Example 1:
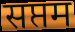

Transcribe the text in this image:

सप्तम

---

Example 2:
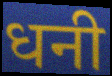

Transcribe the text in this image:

धनी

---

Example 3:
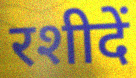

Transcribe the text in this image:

रशीदें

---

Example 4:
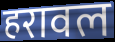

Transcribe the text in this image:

हरावल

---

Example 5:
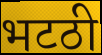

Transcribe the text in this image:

भटठी